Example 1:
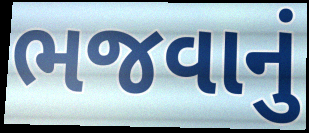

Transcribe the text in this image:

ભજવાનું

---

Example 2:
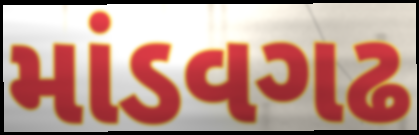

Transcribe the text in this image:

માંડવગઢ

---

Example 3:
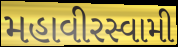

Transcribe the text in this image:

મહાવીરસ્વામી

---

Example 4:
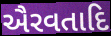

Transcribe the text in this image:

ઐરવતાદિ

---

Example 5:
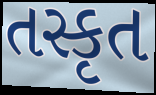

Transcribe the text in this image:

તસ્કૃત